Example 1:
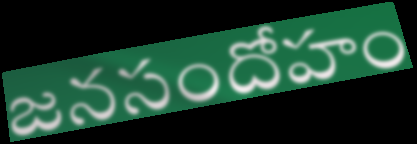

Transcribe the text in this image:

జనసందోహం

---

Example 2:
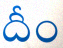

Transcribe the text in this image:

దీం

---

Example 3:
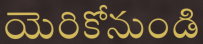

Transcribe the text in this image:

యెరికోనుండి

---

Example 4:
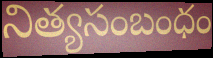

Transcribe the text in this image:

నిత్యసంబంధం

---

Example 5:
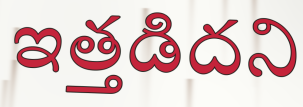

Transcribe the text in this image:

ఇత్తడిదని